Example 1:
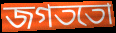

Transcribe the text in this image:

জগততো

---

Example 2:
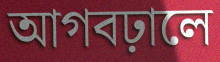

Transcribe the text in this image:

আগবঢ়ালে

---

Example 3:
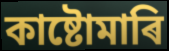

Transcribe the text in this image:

কাষ্টোমাৰি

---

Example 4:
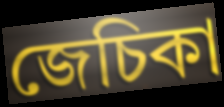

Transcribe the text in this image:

জেচিকা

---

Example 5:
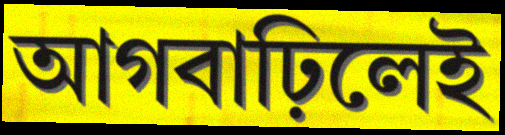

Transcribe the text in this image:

আগবাঢ়িলেই